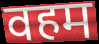
वहम